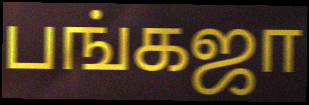
பங்கஜா